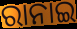
ରାନାଇ